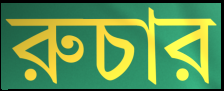
রুচার